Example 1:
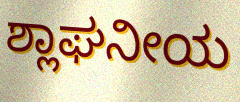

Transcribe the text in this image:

ಶ್ಲಾಘನೀಯ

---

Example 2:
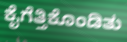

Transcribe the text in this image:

ಕೈಗೆತ್ತಿಕೊಂಡಿತು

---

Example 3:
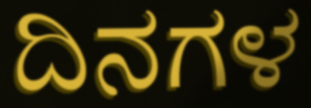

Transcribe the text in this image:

ದಿನಗಳ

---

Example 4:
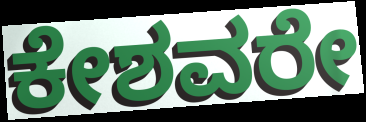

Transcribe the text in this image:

ಕೇಶವರೇ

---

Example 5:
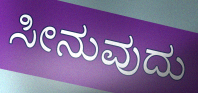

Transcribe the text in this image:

ಸೀನುವುದು